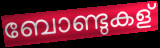
ബോണ്ടുകള്